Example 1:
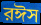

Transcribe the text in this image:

রঈস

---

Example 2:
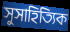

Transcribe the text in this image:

সুসাহিত্যিক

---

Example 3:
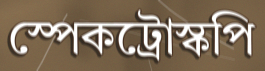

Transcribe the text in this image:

স্পেকট্রোস্কপি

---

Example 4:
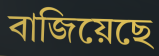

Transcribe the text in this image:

বাজিয়েছে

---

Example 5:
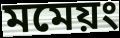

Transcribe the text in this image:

মমেয়ং